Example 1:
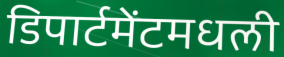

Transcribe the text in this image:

डिपार्टमेंटमधली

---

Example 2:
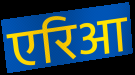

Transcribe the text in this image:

एरिआ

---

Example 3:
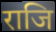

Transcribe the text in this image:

राजि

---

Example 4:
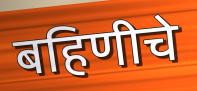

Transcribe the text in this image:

बहिणीचे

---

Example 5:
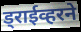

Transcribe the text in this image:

ड्राईव्हरने